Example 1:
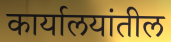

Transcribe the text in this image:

कार्यालयांतील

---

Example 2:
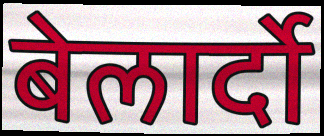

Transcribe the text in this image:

बेलार्दो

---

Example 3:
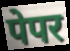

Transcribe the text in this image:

पेपर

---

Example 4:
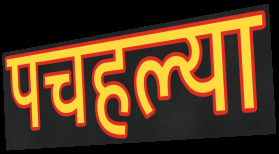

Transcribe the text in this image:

पचहल्या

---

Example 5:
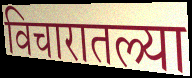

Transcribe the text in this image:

विचारातल्या